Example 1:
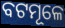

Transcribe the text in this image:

ବଟମୂଳେ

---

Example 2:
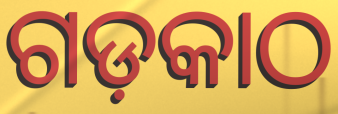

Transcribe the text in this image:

ଗଡ଼କାଠ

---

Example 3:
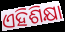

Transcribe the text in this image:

ଏହିଶିକ୍ଷା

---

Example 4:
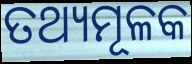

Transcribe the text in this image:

ତଥ୍ୟମୂଳକ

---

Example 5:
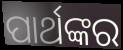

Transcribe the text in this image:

ପାର୍ଥଙ୍କର